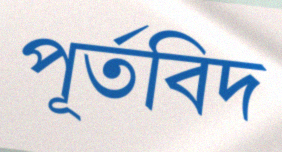
পূর্তবিদ